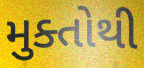
મુક્તોથી